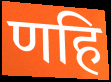
णहि